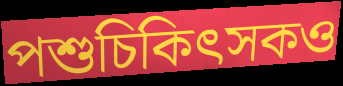
পশুচিকিৎসকও